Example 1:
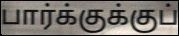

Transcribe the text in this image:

பார்க்குக்குப்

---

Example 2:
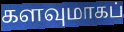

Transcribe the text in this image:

களவுமாகப்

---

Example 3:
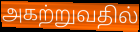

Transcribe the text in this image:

அகற்றுவதில்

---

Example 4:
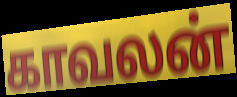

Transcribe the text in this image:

காவலன்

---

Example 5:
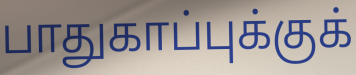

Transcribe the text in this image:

பாதுகாப்புக்குக்